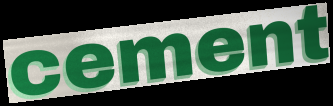
cement